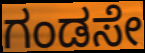
ಗಂಡಸೇ